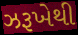
ઝરૂખેથી